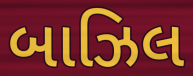
બાઝિલ